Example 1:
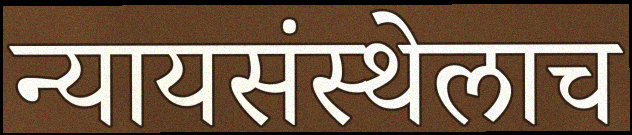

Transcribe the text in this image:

न्यायसंस्थेलाच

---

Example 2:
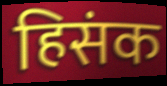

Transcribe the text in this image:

हिसंक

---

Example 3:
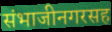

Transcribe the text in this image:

संभाजीनगरसह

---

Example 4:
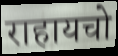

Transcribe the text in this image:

राहायचो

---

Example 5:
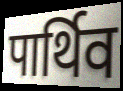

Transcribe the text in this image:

पार्थिव